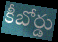
కీబోర్డు